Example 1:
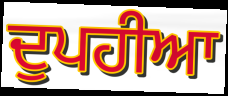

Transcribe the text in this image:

ਦੁਪਹੀਆ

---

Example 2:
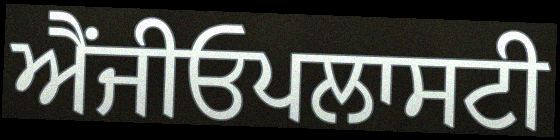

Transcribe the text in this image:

ਐਂਜੀਓਪਲਾਸਟੀ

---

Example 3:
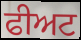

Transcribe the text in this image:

ਫੀਅਟ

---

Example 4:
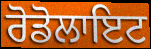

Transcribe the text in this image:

ਰੋਡੋਲਾਇਟ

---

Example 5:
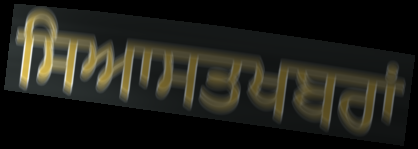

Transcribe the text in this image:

ਸਿਆਸਤਖਬਰਾਂ